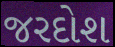
જરદોશ